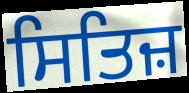
ਸਿਤਿਜ਼